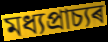
মধ্যপ্ৰাচ্যৰ